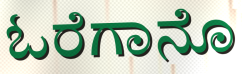
ಓರೆಗಾನೊ